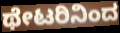
ಥೇಟರಿನಿಂದ